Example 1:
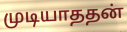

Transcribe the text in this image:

முடியாததன்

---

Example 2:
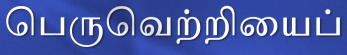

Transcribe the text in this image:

பெருவெற்றியைப்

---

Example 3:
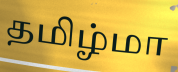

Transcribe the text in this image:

தமிழ்மா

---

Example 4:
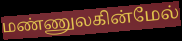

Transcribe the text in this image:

மண்ணுலகின்மேல்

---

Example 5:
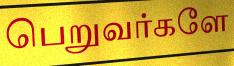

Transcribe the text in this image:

பெறுவர்களே